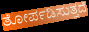
ತೋರ್ಪಡಿಸುತ್ತದೆ